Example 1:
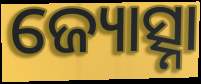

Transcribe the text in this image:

ଜ୍ୟୋତ୍ସ୍ନା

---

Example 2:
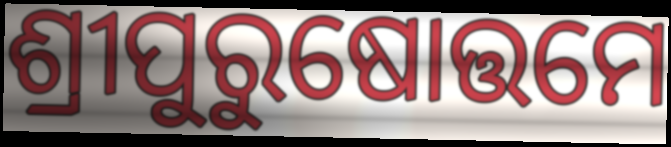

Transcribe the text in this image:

ଶ୍ରୀପୁରୁଷୋତ୍ତମେ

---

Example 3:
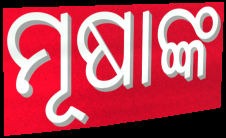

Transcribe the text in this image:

ମୂଷାଙ୍କ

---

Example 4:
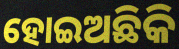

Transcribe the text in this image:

ହୋଇଅଛିକି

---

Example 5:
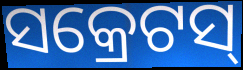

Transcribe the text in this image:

ସକ୍ରେଟସ୍